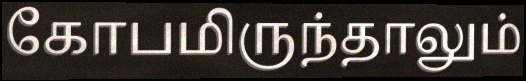
கோபமிருந்தாலும்